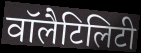
वॉलैटिलिटी